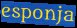
esponja